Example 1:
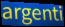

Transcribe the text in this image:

argenti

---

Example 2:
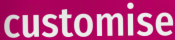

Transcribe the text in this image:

customise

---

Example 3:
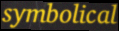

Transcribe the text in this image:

symbolical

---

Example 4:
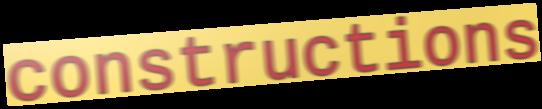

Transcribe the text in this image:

constructions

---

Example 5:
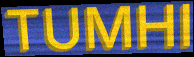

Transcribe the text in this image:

TUMHI